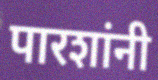
पारशांनी